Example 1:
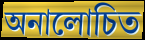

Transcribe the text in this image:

অনালোচিত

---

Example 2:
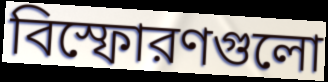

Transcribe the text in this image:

বিস্ফোরণগুলো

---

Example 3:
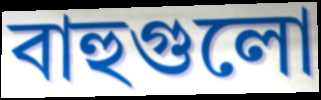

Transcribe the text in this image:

বাহুগুলো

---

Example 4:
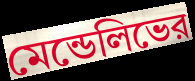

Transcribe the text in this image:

মেন্ডেলিভের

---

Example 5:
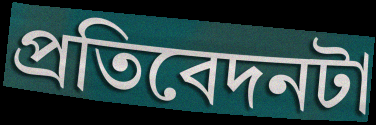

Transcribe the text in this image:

প্রতিবেদনটা